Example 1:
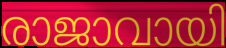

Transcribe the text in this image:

രാജാവായി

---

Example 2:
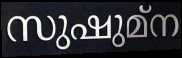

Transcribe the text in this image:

സുഷുമ്ന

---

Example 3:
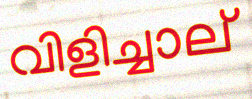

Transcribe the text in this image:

വിളിച്ചാല്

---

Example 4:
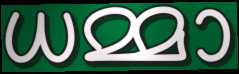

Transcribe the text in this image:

ധമ്മാ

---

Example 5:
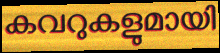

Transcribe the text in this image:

കവറുകളുമായി